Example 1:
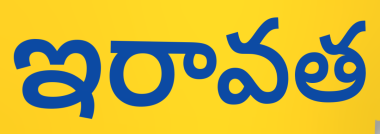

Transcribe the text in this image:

ఇరావత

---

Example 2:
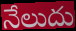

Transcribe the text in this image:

నేలుదు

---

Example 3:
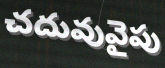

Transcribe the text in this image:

చదువువైపు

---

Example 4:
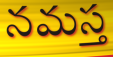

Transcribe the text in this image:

నమస్త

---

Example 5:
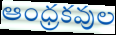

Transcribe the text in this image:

ఆంధ్రకవుల